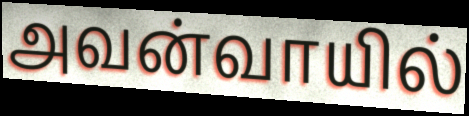
அவன்வாயில்